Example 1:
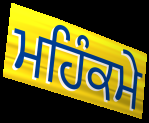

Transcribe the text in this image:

ਮਹਿੰਕਮੇ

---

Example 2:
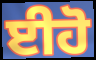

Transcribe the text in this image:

ਈਹੋ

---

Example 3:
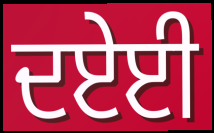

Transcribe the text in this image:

ਦਏਈ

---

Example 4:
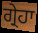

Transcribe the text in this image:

ਗ੍ਰੇਹਾ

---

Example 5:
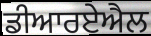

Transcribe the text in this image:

ਡੀਆਰਏਐਲ